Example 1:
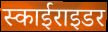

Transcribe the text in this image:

स्काईराइडर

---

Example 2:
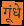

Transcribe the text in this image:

गूंधे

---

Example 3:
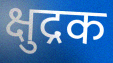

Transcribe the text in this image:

क्षुद्रक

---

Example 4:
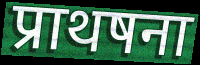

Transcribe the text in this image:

प्राथषना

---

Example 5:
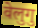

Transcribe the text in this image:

वेलुगु